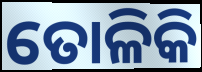
ତୋଳିକି